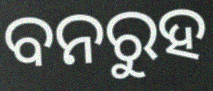
ବନରୁହ